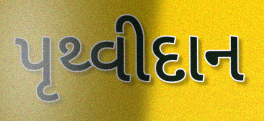
પૃથ્વીદાન